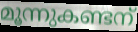
മൂന്നുകണ്ടന്